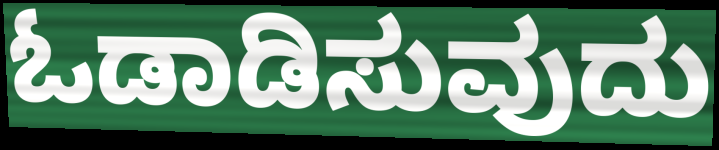
ಓಡಾಡಿಸುವುದು